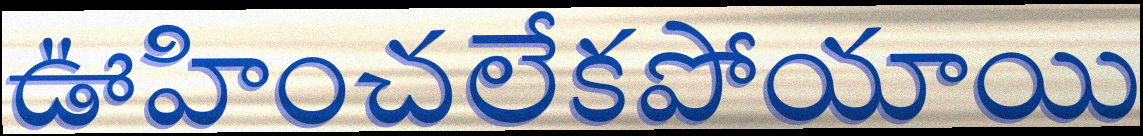
ఊహించలేకపోయాయి